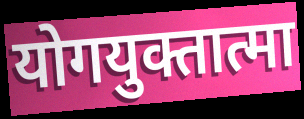
योगयुक्तात्मा